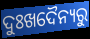
ଦୁଃଖଦୈନ୍ୟରୁ